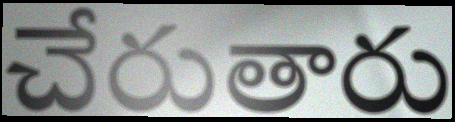
చేరుతారు